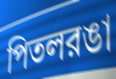
পিতলরঙা